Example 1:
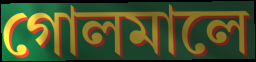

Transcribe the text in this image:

গোলমালে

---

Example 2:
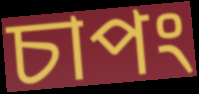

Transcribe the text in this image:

চাপং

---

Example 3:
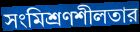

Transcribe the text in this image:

সংমিশ্রণশীলতার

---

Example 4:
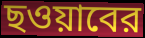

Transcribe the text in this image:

ছওয়াবের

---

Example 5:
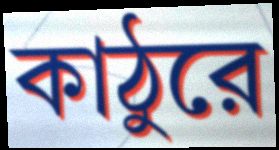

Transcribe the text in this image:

কাঠুরে